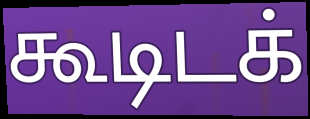
கூடிடக்